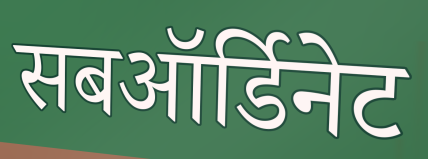
सबऑर्डिनेट